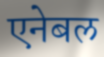
एनेबल